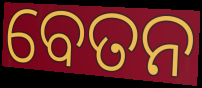
ବେତନ